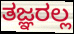
ತಜ್ಞರಲ್ಲ